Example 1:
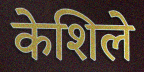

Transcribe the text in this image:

केशिले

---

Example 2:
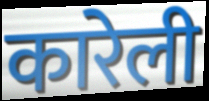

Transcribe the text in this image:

कारेली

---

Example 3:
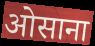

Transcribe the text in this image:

ओसाना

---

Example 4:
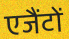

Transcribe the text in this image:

एजैंटों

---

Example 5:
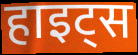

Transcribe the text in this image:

हाइट्स